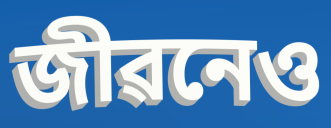
জীৱনেও